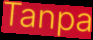
Tanpa